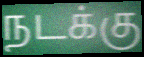
நடக்கு